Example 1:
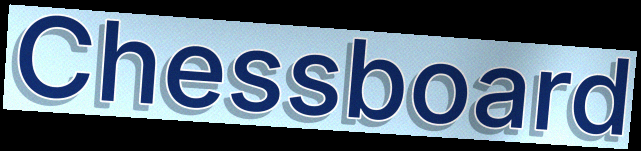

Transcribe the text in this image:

Chessboard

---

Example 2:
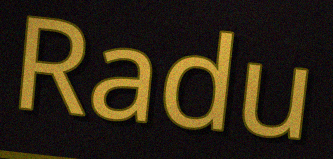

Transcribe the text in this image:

Radu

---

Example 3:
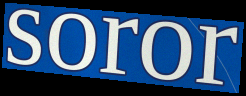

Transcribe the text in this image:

soror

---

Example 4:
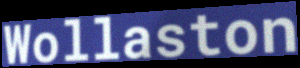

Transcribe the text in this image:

Wollaston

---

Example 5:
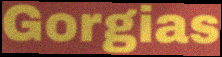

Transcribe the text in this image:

Gorgias